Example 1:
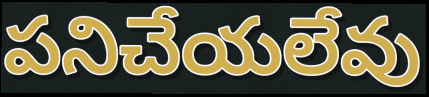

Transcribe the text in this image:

పనిచేయలేవు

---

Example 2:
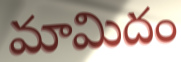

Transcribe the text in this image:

మామిదం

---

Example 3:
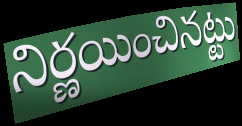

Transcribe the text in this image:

నిర్ణయించినట్టు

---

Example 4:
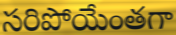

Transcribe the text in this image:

సరిపోయేంతగా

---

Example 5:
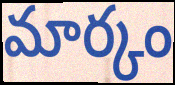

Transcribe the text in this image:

మార్కం